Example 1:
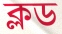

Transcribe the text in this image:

ক্লড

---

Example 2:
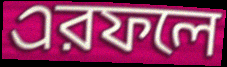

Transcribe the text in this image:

এরফলে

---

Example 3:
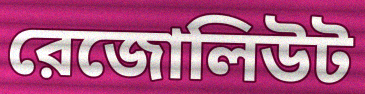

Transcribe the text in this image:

রেজোলিউট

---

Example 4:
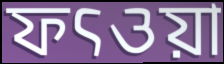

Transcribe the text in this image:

ফৎওয়া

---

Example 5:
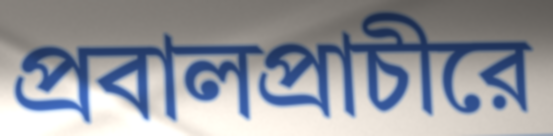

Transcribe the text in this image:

প্রবালপ্রাচীরে